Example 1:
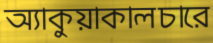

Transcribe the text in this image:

অ্যাকুয়াকালচারে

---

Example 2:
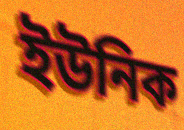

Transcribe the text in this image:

ইউনিক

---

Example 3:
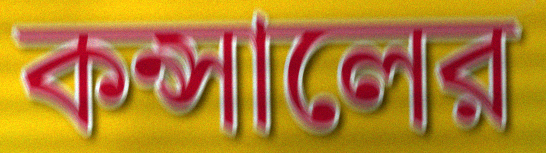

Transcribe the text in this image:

কন্সালের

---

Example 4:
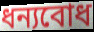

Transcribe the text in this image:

ধন্যবোধ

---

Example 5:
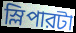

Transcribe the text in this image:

স্লিপারটা